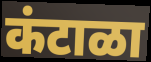
कंटाळा